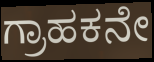
ಗ್ರಾಹಕನೇ